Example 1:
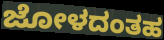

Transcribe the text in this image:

ಜೋಳದಂತಹ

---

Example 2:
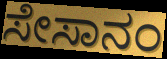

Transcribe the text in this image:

ಸೇಸಾನಂ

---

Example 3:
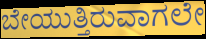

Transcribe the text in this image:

ಬೇಯುತ್ತಿರುವಾಗಲೇ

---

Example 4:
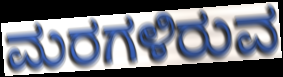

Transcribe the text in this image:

ಮರಗಳಿರುವ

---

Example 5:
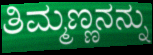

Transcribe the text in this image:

ತಿಮ್ಮಣ್ಣನನ್ನು